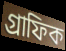
গ্ৰাফিক